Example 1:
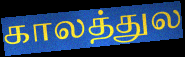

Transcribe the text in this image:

காலத்துல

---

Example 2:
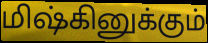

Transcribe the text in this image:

மிஷ்கினுக்கும்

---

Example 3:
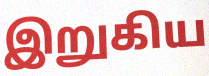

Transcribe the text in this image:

இறுகிய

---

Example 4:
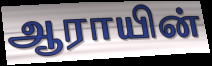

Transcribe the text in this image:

ஆராயின்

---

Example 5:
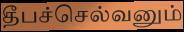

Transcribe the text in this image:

தீபச்செல்வனும்